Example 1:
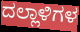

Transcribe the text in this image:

ದಲ್ಲಾಳಿಗಳ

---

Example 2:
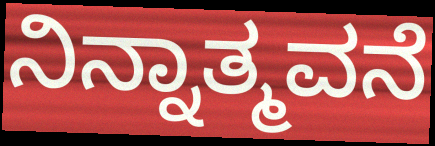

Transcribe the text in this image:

ನಿನ್ನಾತ್ಮವನೆ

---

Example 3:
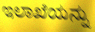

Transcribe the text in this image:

ಇಲಾಖೆಯನ್ನು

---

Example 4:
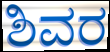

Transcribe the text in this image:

ಶಿವರ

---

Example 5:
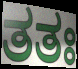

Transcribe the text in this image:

ತತಃ